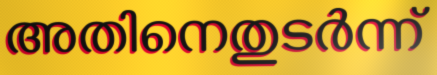
അതിനെതുടർന്ന്